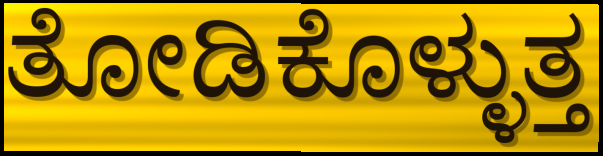
ತೋಡಿಕೊಳ್ಳುತ್ತ